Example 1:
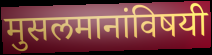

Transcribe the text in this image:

मुसलमानांविषयी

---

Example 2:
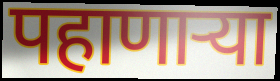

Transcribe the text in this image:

पहाणार्‍या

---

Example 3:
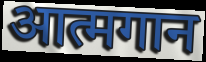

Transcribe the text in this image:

आत्मगान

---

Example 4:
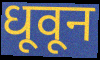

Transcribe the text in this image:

धूवून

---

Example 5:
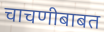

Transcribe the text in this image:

चाचणीबाबत